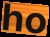
ho